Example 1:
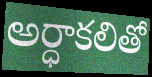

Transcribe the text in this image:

అర్ధాకలితో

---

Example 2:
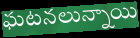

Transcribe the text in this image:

ఘటనలున్నాయి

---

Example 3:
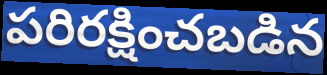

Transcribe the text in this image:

పరిరక్షించబడిన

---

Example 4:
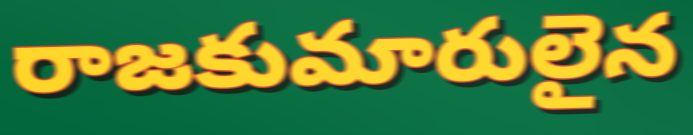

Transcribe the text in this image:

రాజకుమారులైన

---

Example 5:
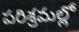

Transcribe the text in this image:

పరిశ్రమల్లో